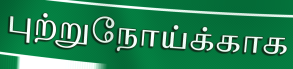
புற்றுநோய்க்காக